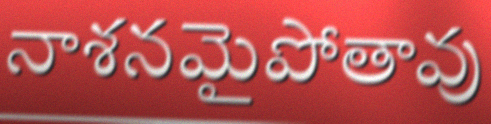
నాశనమైపోతావు